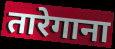
तारेगाना